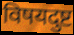
विषयदुष्ट